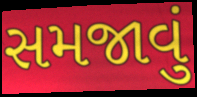
સમજાવું